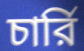
চার্রি